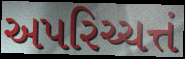
અપરિચ્ચત્તં